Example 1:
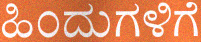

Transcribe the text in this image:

ಹಿಂದುಗಳಿಗೆ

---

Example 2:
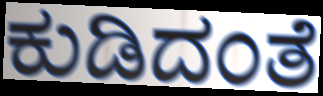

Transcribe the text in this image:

ಕುಡಿದಂತೆ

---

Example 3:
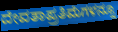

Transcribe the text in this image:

ದೇವತಾಪ್ರತಿಮೆಗಳನ್ನೂ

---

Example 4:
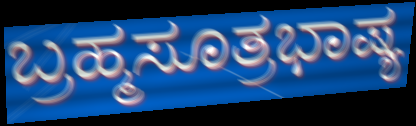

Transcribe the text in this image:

ಬ್ರಹ್ಮಸೂತ್ರಭಾಷ್ಯ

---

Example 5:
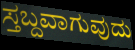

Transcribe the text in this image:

ಸ್ತಬ್ದವಾಗುವುದು